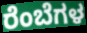
ರೆಂಬೆಗಳ